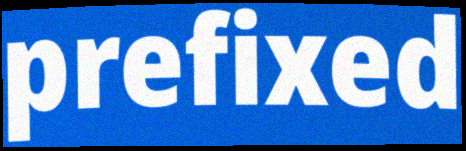
prefixed